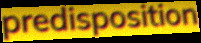
predisposition